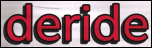
deride